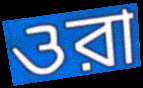
ওরা